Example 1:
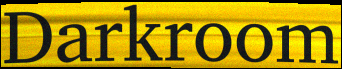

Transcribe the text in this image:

Darkroom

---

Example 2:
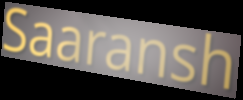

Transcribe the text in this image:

Saaransh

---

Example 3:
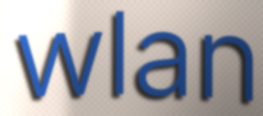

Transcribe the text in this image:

wlan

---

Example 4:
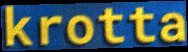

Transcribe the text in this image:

krotta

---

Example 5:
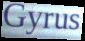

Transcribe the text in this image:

Gyrus